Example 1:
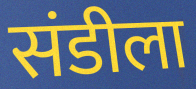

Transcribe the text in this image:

संडीला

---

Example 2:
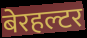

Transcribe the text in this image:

बेरहल्टर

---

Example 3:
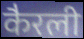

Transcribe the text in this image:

कैरली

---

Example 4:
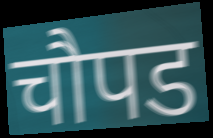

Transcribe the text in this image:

चौपड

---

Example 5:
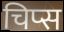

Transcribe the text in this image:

चिप्‍स